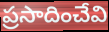
ప్రసాదించేవి